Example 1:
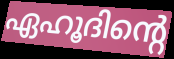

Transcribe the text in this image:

ഏഹൂദിന്റെ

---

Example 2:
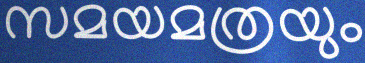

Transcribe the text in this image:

സമയമത്രയും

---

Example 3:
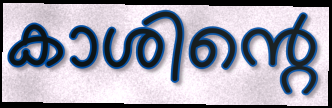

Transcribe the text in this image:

കാശിന്റെ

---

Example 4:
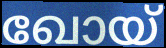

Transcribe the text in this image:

ഖോയ്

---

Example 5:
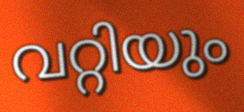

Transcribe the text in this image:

വറ്റിയും